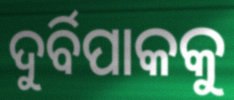
ଦୁର୍ବିପାକକୁ